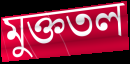
মুক্ততল